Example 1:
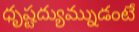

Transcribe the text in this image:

ధృష్టద్యుమ్నుడంటే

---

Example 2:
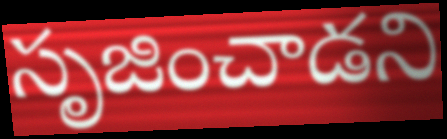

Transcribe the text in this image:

సృజించాడని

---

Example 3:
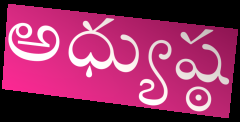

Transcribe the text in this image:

అధ్యుష్ఠ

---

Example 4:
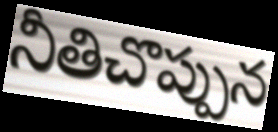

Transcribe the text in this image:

నీతిచొప్పున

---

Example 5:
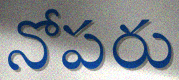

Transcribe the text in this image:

నోపరు